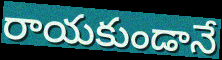
రాయకుండానే